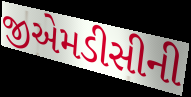
જીએમડીસીની